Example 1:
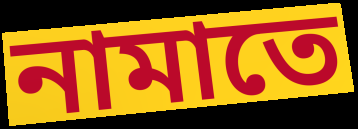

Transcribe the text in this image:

নামাতে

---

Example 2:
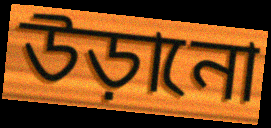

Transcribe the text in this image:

উড়ানো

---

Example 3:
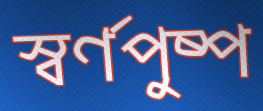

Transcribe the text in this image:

স্বর্ণপুষ্প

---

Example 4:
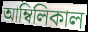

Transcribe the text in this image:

আম্বিলিকাল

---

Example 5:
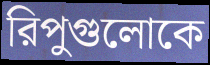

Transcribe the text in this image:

রিপুগুলোকে